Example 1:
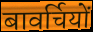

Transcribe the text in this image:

बावर्चियों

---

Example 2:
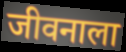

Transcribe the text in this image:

जीवनाला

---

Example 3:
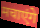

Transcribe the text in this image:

मचाएंगे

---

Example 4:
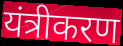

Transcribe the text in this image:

यंत्रीकरण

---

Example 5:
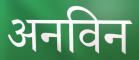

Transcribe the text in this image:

अनविन